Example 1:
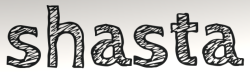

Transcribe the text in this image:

shasta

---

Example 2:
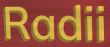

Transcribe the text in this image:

Radii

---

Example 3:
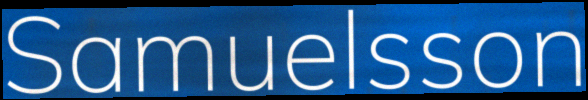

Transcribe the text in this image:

Samuelsson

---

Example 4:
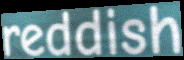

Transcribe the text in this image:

reddish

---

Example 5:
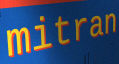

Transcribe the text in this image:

mitran